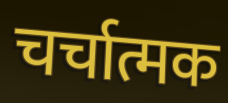
चर्चात्मक